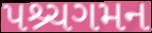
પશ્ર્ચગમન